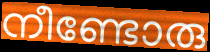
നീണ്ടോരു